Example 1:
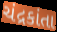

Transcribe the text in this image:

ચંદ્રકાંતા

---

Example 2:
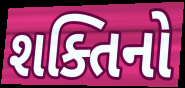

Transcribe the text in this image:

શક્તિનો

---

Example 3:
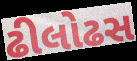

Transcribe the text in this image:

ઢીલોઢસ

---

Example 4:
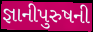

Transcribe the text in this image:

જ્ઞાનીપુરુષની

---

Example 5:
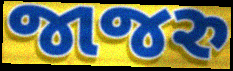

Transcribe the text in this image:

જાજરુ